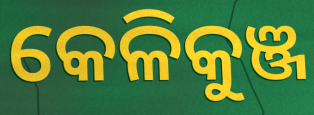
କେଳିକୁଞ୍ଜ